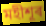
মহীশূৰ